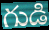
గుడి